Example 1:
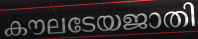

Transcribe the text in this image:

കൗലടേയജാതി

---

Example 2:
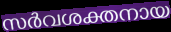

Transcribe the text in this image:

സർവശക്തനായ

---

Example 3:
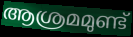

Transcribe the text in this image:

ആശ്രമമുണ്ട്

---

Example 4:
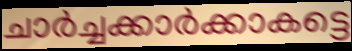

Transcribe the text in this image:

ചാർച്ചക്കാർക്കാകട്ടെ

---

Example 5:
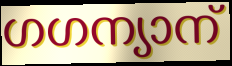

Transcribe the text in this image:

ഗഗന്യാന്